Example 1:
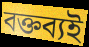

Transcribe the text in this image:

বক্তব্যই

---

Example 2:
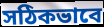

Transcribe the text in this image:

সঠিকভাবে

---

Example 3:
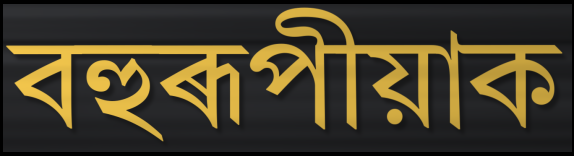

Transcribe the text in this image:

বহুৰূপীয়াক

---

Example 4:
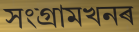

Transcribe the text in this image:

সংগ্ৰামখনৰ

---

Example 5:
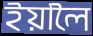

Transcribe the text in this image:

ইয়ালৈ